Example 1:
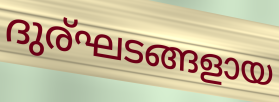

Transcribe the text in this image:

ദുര്ഘടങ്ങളായ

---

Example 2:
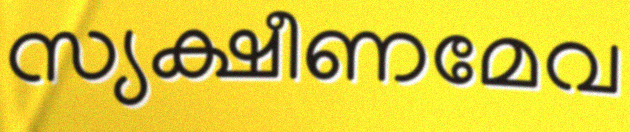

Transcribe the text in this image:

സ്യക്ഷീണമേവ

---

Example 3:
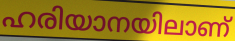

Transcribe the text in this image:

ഹരിയാനയിലാണ്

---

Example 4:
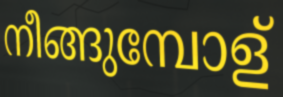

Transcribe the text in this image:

നീങ്ങുമ്പോള്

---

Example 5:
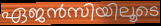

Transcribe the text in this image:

ഏജൻസിയിലൂടെ